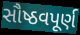
સૌષ્ઠવપૂર્ણ